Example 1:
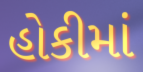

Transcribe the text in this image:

હોકીમાં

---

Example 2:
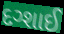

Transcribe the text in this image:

દગ્શાઈ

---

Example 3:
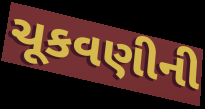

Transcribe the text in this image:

ચૂકવણીની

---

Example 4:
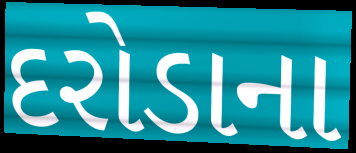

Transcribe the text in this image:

દરોડાના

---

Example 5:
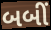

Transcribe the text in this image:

બબીં